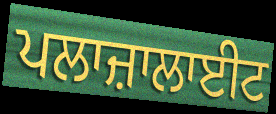
ਪਲਾਜ਼ਾਲਾਈਟ